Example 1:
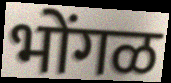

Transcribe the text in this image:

भोंगळ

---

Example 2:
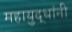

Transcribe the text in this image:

महायुद्धांनी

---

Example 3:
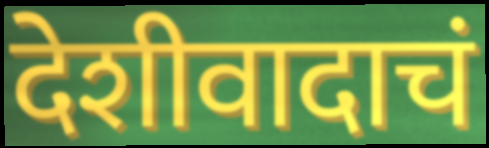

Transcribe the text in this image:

देशीवादाचं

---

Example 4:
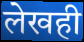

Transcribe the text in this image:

लेखही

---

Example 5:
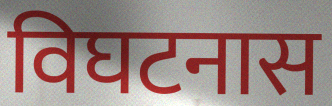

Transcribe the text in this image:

विघटनास